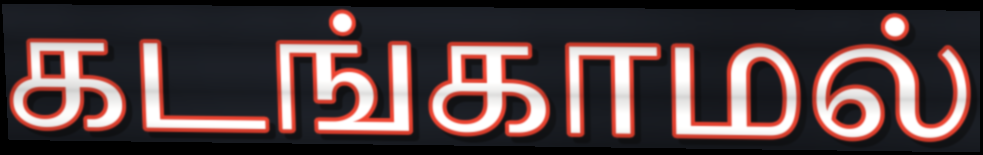
கடங்காமல்